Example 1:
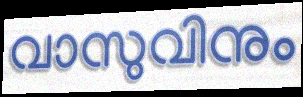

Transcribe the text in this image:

വാസുവിനും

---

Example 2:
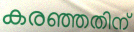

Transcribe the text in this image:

കരഞ്ഞതിന്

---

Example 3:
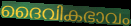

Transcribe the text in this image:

ദൈവികഭാവം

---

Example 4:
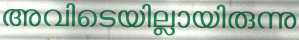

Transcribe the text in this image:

അവിടെയില്ലായിരുന്നു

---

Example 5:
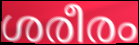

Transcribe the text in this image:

ശരീരം